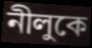
নীলুকে